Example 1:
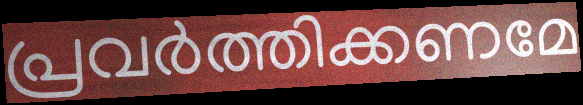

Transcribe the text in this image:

പ്രവർത്തിക്കണമേ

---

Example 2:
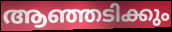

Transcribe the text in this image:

ആഞ്ഞടിക്കും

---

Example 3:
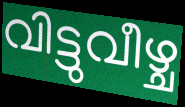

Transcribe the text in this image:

വിട്ടുവീഴ്ച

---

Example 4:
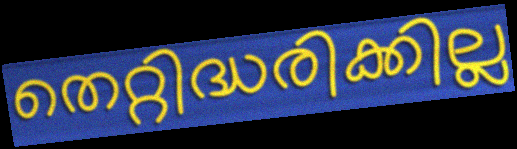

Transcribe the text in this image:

തെറ്റിദ്ധരിക്കില്ല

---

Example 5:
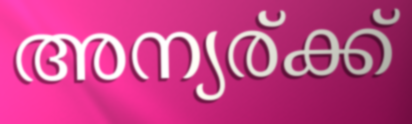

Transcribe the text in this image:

അന്യര്ക്ക്